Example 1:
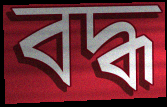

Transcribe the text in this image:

বদ্ধ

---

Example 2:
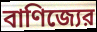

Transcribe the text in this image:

বাণিজ্যের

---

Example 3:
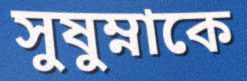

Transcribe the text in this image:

সুষুম্নাকে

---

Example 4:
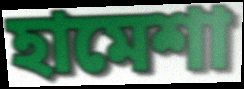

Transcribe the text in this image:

হামেশা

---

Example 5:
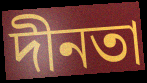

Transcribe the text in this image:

দীনতা